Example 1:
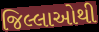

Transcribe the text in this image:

જિલ્લાઓથી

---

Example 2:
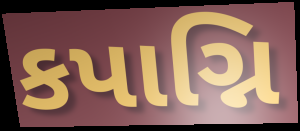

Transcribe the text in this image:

કપાગ્નિ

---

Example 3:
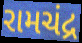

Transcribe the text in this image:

રામચંદ્ર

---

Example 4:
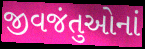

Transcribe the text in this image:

જીવજંતુઓનાં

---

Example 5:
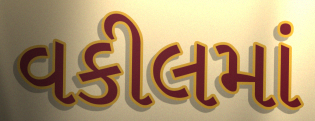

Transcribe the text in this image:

વકીલમાં